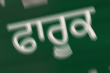
ਫਾਰੂਕ